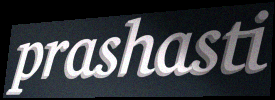
prashasti